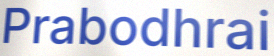
Prabodhrai